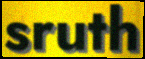
sruth